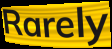
Rarely